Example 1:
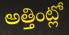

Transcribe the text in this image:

అత్తింట్లో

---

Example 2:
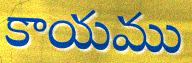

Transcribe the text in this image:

కాయము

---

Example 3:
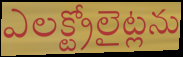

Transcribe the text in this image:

ఎలక్ట్రోలైట్లను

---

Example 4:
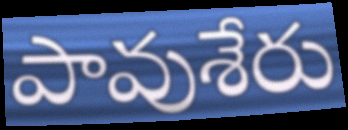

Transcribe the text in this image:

పావుశేరు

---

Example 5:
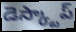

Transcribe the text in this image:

డెస్క్టాప్